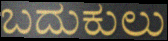
ಬದುಕುಲು